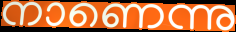
നാണെന്നു